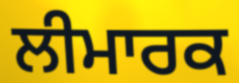
ਲੀਮਾਰਕ